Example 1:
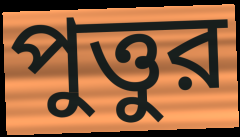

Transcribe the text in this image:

পুত্তুর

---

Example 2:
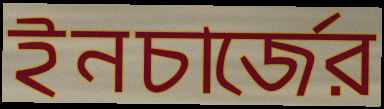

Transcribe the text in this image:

ইনচার্জের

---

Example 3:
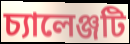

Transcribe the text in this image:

চ্যালেঞ্জটি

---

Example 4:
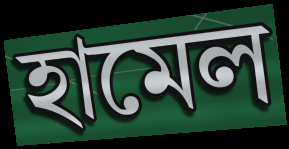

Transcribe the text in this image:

হামেল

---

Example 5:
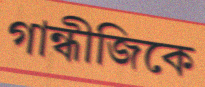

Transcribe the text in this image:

গান্ধীজিকে